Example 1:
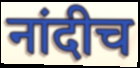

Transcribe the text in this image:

नांदीच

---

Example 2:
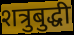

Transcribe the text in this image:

शत्रुबुद्धी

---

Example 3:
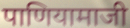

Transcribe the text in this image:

पाणियामाजी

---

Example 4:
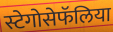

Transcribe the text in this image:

स्टेगोसेफॅलिया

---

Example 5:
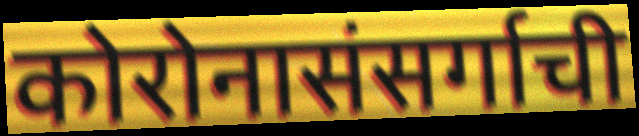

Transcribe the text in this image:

कोरोनासंसर्गाची